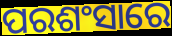
ପରଶଂସାରେ